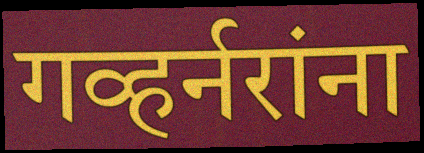
गव्हर्नरांना